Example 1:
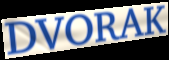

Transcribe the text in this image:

DVORAK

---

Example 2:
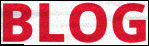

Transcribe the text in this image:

BLOG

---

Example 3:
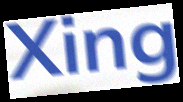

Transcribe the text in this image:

Xing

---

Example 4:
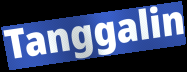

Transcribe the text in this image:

Tanggalin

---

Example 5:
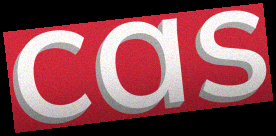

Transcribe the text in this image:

cas